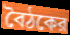
বৈঠকের